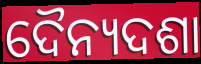
ଦୈନ୍ୟଦଶା